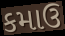
કમાઉ